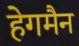
हेगमैन